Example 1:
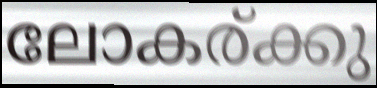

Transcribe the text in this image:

ലോകര്ക്കു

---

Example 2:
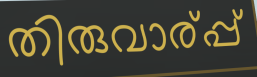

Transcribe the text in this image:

തിരുവാര്പ്പ്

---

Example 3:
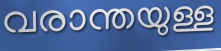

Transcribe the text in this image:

വരാന്തയുള്ള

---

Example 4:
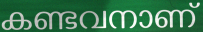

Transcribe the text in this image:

കണ്ടവനാണ്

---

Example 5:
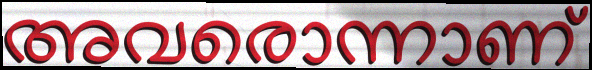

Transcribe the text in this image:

അവരൊന്നാണ്